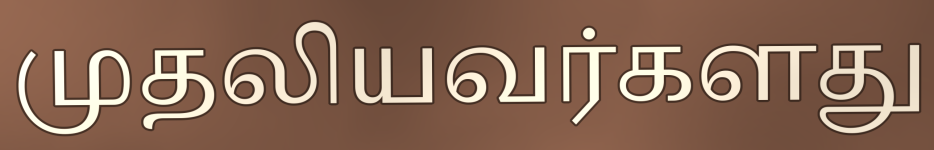
முதலியவர்களது